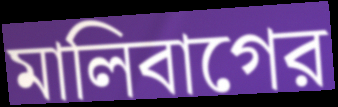
মালিবাগের